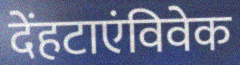
देंहटाएंविवेक